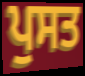
ਪੁਸਤ